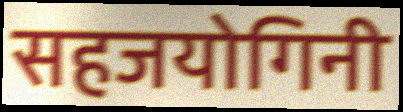
सहजयोगिनी